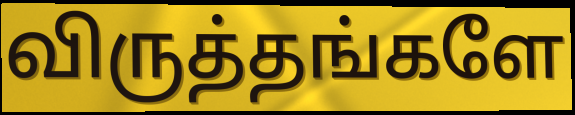
விருத்தங்களே